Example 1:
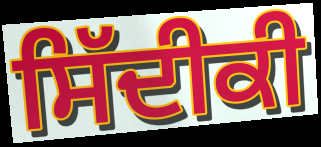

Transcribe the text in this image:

ਸਿੱਦੀਕੀ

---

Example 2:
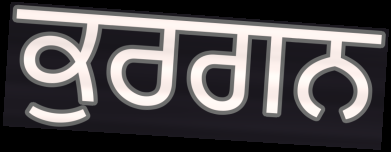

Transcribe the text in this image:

ਕੁਰਗਨ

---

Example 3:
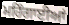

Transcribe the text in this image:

ਮਹਿੰਗਾਈਆਂ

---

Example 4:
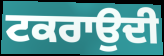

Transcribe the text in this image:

ਟਕਰਾਉਦੀ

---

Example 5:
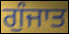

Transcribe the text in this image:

ਗੁੰਜਾਤ